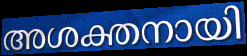
അശക്തനായി